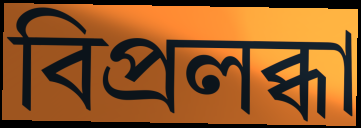
বিপ্রলব্ধা